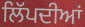
ਲਿੱਪਦੀਆਂ